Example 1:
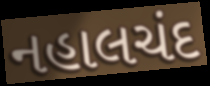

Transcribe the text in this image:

નહાલચંદ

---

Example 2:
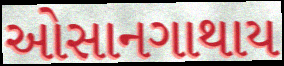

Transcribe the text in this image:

ઓસાનગાથાય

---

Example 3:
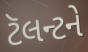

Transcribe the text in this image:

ટૅલન્ટને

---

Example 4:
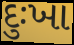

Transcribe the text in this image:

દુઃખા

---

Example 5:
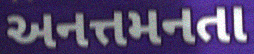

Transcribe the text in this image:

અનત્તમનતા